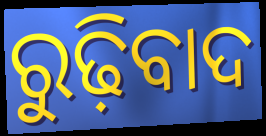
ରୁଢ଼ିବାଦ